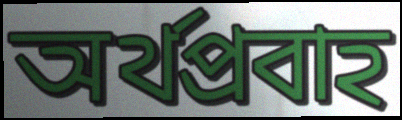
অর্থপ্রবাহ